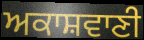
ਅਕਾਸ਼ਵਾਣੀ